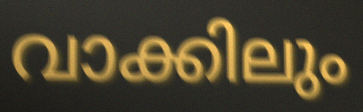
വാക്കിലും